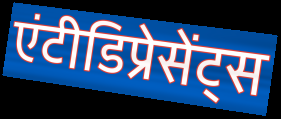
एंटीडिप्रेसेंट्स